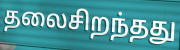
தலைசிறந்தது